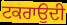
ਟਕਰਾਉਦੀ